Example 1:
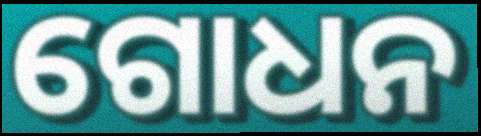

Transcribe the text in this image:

ଗୋଧନ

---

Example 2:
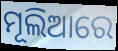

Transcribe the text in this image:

ମୂଲିଆରେ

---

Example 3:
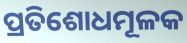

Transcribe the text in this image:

ପ୍ରତିଶୋଧମୂଳକ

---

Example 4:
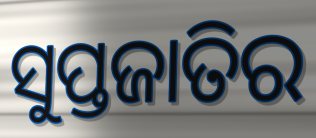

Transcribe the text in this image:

ସୁପ୍ତଜାତିର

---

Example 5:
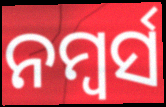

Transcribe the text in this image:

ନମ୍ୱର୍ସ